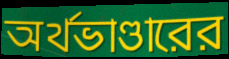
অর্থভাণ্ডারের